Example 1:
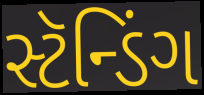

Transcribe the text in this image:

સ્ટૅન્ડિંગ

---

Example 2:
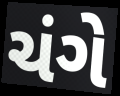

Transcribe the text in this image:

ચંગે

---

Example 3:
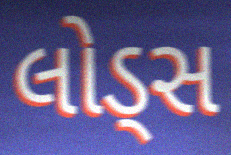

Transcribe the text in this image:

લોડ્સ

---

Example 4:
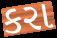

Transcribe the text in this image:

કરા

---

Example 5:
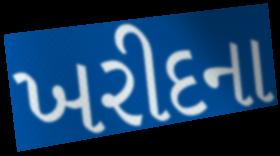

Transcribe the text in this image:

ખરીદના